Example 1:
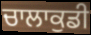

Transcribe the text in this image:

ਚਾਲਾਕੁਡੀ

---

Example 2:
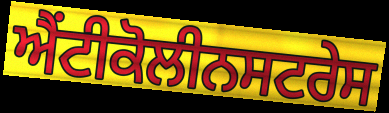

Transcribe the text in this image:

ਐਂਟੀਕੋਲੀਨਸਟਰੇਸ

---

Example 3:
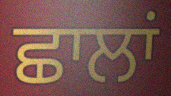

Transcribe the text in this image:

ਛਾਲਾਂ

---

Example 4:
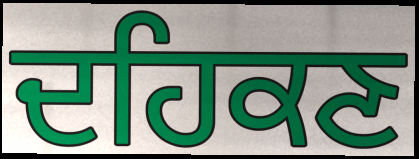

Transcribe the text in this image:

ਦਹਿਕਣ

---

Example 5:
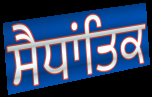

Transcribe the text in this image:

ਸੈਧਾਂਤਿਕ